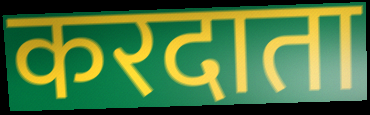
करदाता